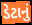
ડેટાનું